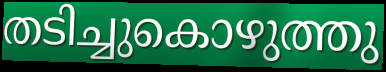
തടിച്ചുകൊഴുത്തു